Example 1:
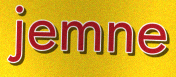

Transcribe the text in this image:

jemne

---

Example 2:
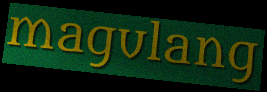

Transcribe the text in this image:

magulang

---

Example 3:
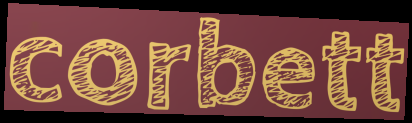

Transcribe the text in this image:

corbett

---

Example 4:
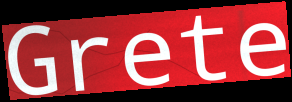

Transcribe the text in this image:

Grete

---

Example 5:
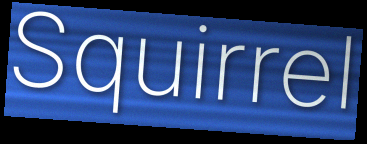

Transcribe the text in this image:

Squirrel